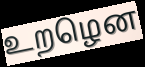
உறழென